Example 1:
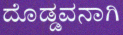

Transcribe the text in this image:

ದೊಡ್ಡವನಾಗಿ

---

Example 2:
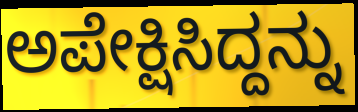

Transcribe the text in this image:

ಅಪೇಕ್ಷಿಸಿದ್ದನ್ನು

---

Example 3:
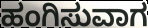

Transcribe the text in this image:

ಹಂಗಿಸುವಾಗ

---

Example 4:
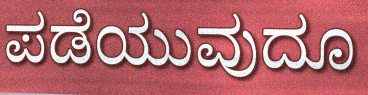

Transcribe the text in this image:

ಪಡೆಯುವುದೂ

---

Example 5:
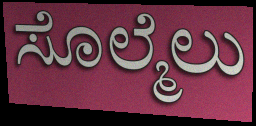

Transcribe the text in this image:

ಸೊಲ್ಮೆಲು